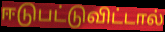
ஈடுபட்டுவிட்டால்